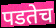
पडतेच